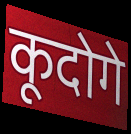
कूदोगे